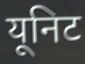
यूनिट